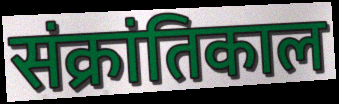
संक्रांतिकाल